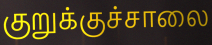
குறுக்குச்சாலை